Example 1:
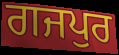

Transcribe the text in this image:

ਗਜਪੁਰ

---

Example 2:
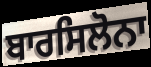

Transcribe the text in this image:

ਬਾਰਸਿਲੋਨਾ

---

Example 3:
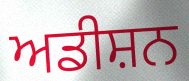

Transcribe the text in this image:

ਅਡੀਸ਼ਨ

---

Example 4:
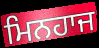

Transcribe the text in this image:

ਮਿਨਹਾਜ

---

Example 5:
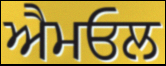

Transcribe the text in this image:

ਐਮਓਲ